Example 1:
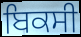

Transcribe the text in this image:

ਬਿਕਸੀ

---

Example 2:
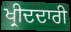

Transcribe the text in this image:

ਖ੍ਰੀਦਦਾਰੀ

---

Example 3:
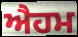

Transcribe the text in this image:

ਐਹਮ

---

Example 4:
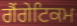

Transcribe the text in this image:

ਗੈਂਗੇਟਿਕਮ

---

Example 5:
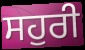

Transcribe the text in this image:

ਸਹੁਰੀ